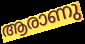
ആരാണു